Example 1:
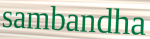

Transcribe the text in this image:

sambandha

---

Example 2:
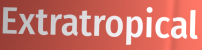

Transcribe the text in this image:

Extratropical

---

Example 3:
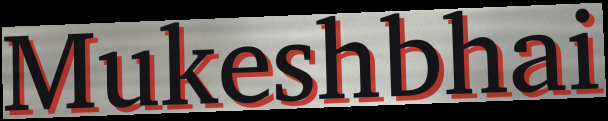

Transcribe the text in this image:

Mukeshbhai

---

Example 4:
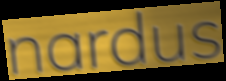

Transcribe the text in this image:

nardus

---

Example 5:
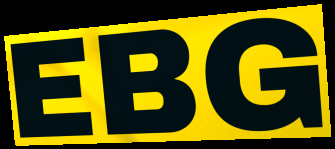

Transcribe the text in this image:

EBG